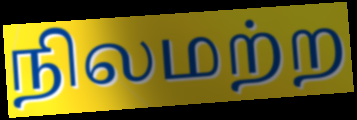
நிலமற்ற